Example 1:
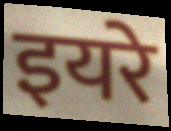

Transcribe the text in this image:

इयरे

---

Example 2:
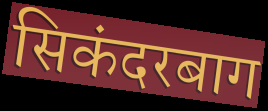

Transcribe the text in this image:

सिकंदरबाग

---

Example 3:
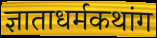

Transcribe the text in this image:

ज्ञाताधर्मकथांग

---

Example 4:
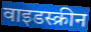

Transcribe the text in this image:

वाइडस्क्रीन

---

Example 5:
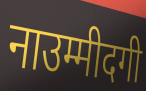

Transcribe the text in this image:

नाउम्मीदगी